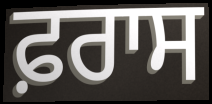
ਫ਼ਰਾਸ